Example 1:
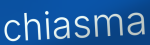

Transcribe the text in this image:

chiasma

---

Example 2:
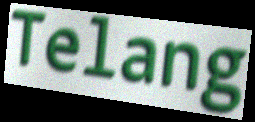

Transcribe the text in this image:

Telang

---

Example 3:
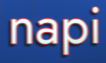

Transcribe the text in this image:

napi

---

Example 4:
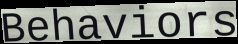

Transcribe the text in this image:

Behaviors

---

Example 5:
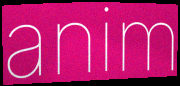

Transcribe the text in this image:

anim